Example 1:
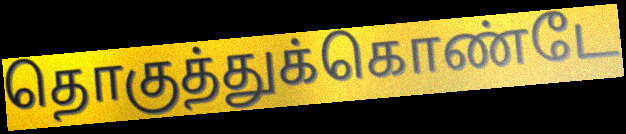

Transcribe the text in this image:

தொகுத்துக்கொண்டே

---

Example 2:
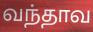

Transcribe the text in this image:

வந்தாவ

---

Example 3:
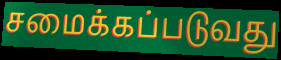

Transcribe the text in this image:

சமைக்கப்படுவது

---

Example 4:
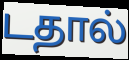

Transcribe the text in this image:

டதால்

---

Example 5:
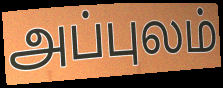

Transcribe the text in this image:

அப்புலம்